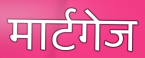
मार्टगेज